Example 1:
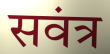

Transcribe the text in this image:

सवंत्र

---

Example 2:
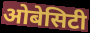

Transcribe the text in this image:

ओबेसिटी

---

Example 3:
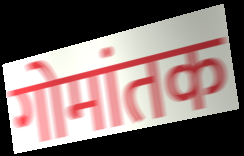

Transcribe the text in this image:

गोमांतक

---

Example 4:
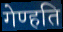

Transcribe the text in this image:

गेण्हति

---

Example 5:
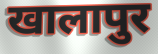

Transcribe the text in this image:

खालापुर